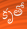
కృతో